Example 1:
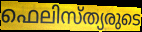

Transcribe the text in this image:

ഫെലിസ്ത്യരുടെ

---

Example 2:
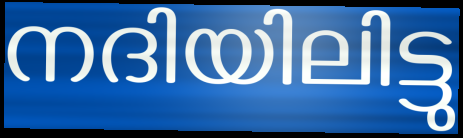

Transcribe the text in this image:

നദിയിലിട്ടു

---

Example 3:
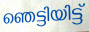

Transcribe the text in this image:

ഞെട്ടിയിട്ട്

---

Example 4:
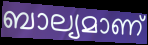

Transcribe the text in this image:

ബാല്യമാണ്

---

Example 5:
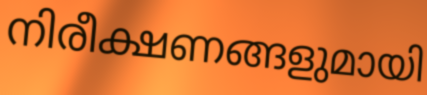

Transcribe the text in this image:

നിരീക്ഷണങ്ങളുമായി